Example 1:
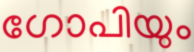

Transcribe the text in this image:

ഗോപിയും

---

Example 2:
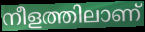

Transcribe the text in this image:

നീളത്തിലാണ്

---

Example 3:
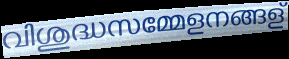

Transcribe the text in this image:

വിശുദ്ധസമ്മേളനങ്ങള്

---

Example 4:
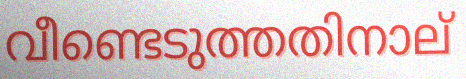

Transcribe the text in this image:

വീണ്ടെടുത്തതിനാല്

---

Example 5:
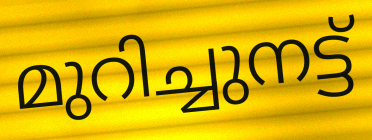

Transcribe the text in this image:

മുറിച്ചുനട്ട്